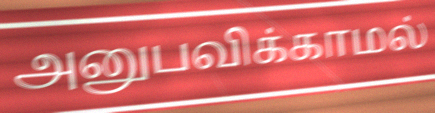
அனுபவிக்காமல்